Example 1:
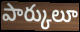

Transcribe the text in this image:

పార్కులూ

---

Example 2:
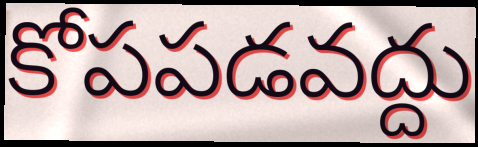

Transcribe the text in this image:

కోపపడవద్దు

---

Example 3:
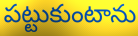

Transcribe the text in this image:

పట్టుకుంటాను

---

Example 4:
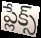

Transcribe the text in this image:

ప్లేక్స్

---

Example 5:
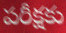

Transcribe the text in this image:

పరీక్షకు